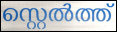
സ്റ്റെൽത്ത്